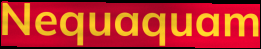
Nequaquam